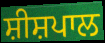
ਸ਼ੀਸ਼ਪਾਲ